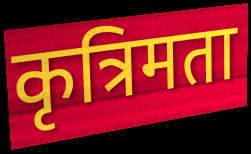
कृत्रिमता